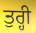
ਤੁਰ੍ਹੀ